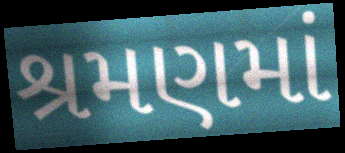
શ્રમણમાં